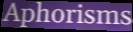
Aphorisms